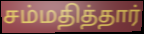
சம்மதித்தார்